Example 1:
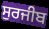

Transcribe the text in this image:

ਸੁਰਜੀਬ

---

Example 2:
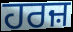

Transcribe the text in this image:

ਹਰਜ਼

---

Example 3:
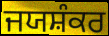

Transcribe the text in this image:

ਜਯਸ਼ੰਕਰ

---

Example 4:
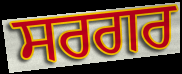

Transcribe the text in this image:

ਸਰਗਰ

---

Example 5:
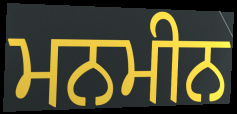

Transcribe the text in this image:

ਮਨਮੀਨ